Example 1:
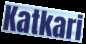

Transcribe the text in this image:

Katkari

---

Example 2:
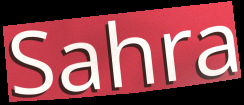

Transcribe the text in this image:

Sahra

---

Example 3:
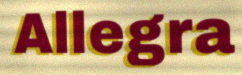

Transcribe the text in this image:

Allegra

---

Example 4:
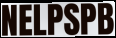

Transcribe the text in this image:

NELPSPB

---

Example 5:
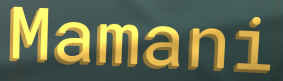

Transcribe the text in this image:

Mamani